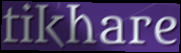
tikhare